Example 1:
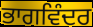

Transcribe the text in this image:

ਭਾਗਵਿੰਦਰ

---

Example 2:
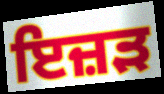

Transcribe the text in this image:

ਇਜ਼ੜ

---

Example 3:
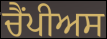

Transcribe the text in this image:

ਚੈਂਪੀਅਸ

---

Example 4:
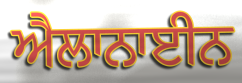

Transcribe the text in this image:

ਐਲਾਨਾਈਨ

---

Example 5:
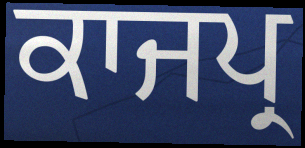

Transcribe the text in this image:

ਕਾਜਪ੍ਰ